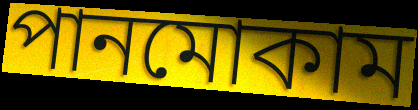
পানমোকাম